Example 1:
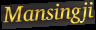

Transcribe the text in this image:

Mansingji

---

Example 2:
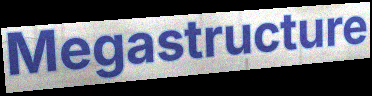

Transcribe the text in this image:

Megastructure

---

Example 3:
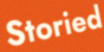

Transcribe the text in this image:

Storied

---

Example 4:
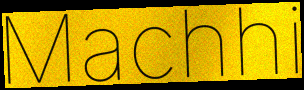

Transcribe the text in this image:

Machhi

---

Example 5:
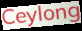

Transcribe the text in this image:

Ceylong